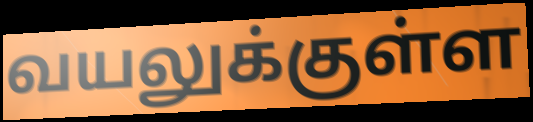
வயலுக்குள்ள